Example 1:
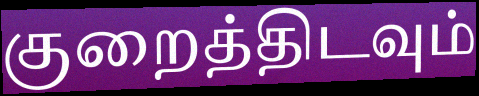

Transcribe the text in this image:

குறைத்திடவும்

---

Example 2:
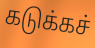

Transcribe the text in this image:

கடுக்கச்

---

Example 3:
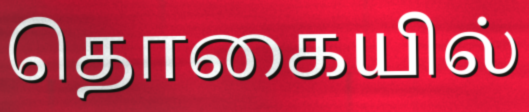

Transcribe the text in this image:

தொகையில்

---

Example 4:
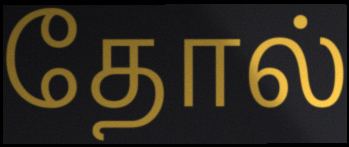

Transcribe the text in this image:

தோல்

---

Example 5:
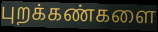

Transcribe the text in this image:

புறக்கண்களை